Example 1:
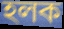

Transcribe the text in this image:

হলক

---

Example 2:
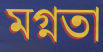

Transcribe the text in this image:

মগ্নতা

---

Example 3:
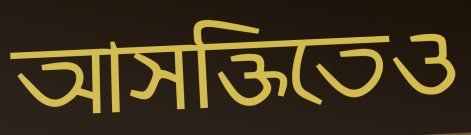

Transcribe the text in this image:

আসক্তিতেও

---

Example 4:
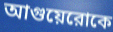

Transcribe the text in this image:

আগুয়েরোকে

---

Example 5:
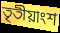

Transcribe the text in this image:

তৃতীয়াংশ